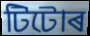
টিটোৰ